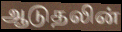
ஆடுதலின்